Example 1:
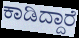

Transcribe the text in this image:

ಕಾಡಿದ್ದಾರೆ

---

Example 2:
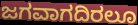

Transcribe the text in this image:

ಜಗವಾಗದಿರಲೂ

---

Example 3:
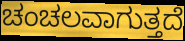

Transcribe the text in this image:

ಚಂಚಲವಾಗುತ್ತದೆ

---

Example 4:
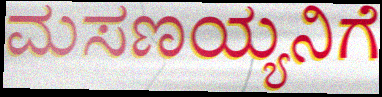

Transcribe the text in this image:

ಮಸಣಯ್ಯನಿಗೆ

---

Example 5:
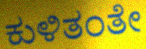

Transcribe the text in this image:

ಕುಳಿತಂತೇ